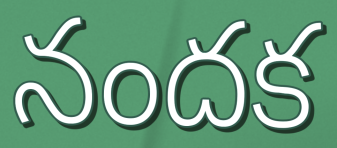
నందక